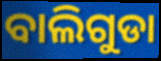
ବାଲିଗୁଡା